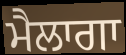
ਮੈਲਾਗਾ